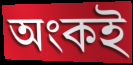
অংকই